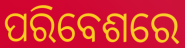
ପରିବେଶରେ